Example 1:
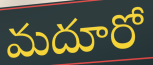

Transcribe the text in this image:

మదూరో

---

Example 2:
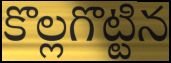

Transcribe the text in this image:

కొల్లగొట్టిన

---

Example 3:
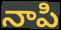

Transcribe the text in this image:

నాపి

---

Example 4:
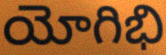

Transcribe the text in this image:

యోగిభి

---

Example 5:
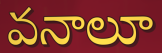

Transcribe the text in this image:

వనాలూ